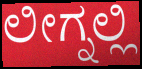
ಲೀಗ್ನಲ್ಲಿ